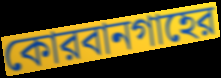
কোরবানগাহের